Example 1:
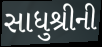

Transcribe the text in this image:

સાધુશ્રીની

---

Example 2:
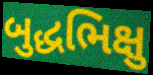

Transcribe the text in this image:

બુદ્ધભિક્ષુ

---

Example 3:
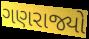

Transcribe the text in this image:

ગણરાજ્યો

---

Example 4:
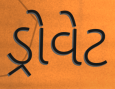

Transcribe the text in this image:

ડ્રોવેટ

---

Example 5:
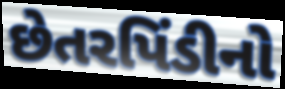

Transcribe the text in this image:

છેતરપિંડીનો